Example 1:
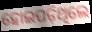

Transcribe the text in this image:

ହୋଇପଡ଼ିଥିଲେ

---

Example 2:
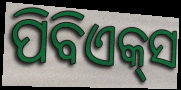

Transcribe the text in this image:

ପିବିଏକ୍‌ସ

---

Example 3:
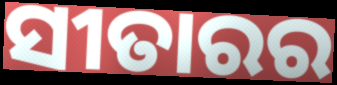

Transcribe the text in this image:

ସୀତାରର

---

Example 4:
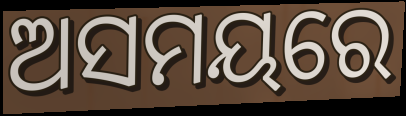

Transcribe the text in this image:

ଅସମୟରେ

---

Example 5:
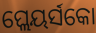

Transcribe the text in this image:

ପ୍ଲେୟର୍ସକୋ